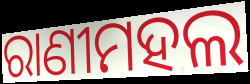
ରାଣୀମହଲ